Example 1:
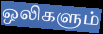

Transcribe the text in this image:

ஒலிகளும்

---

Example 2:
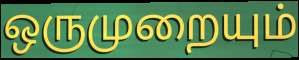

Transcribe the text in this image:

ஒருமுறையும்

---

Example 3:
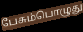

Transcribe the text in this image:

பேசும்பொழுது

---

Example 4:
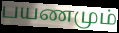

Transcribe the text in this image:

பயணமும்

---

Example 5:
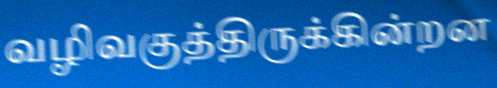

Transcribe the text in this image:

வழிவகுத்திருக்கின்றன